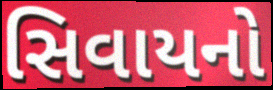
સિવાયનો